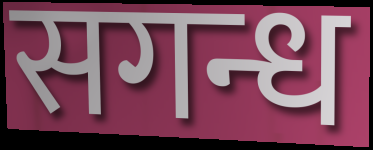
सगन्ध